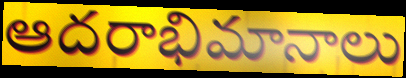
ఆదరాభిమానాలు